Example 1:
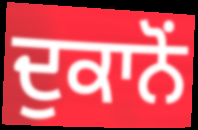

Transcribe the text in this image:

ਦੁਕਾਨੋਂ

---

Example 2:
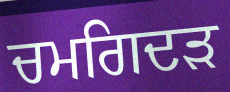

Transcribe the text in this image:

ਚਮਗਿਦੜ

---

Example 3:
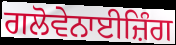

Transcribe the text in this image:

ਗਲੋਵੇਨਾਈਜ਼ਿੰਗ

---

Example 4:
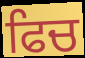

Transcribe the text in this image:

ਫਿਚ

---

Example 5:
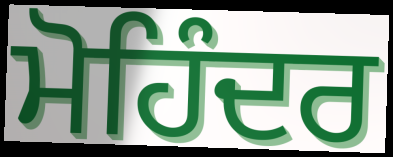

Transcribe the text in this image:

ਮੋਹਿੰਦਰ